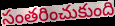
సంతరించుకుంది